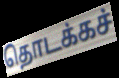
தொடக்கச்